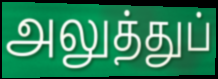
அலுத்துப்